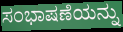
ಸಂಭಾಷಣೆಯನ್ನು